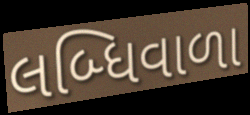
લબ્ધિવાળા